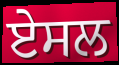
ਏਸਲ